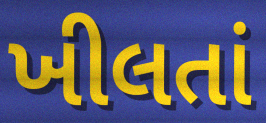
ખીલતાં